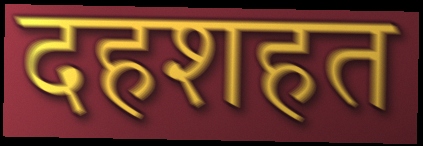
दहशहत